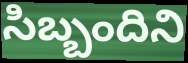
సిబ్బందిని